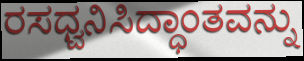
ರಸಧ್ವನಿಸಿದ್ಧಾಂತವನ್ನು